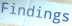
Findings